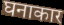
घनाकार